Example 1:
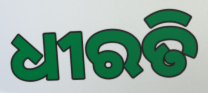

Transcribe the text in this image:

ଧୀରତି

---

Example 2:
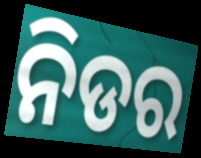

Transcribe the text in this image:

ନିଡର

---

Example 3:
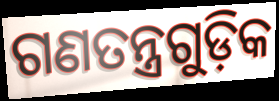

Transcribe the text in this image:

ଗଣତନ୍ତ୍ରଗୁଡ଼ିକ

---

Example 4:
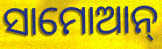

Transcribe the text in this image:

ସାମୋଆନ୍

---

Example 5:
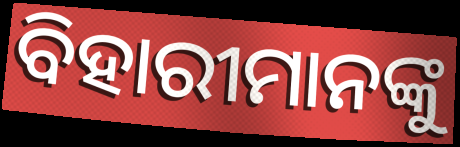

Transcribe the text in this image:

ବିହାରୀମାନଙ୍କୁ